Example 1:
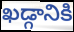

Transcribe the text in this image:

ఖడ్గానికి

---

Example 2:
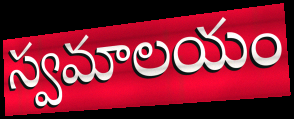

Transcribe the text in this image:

స్వమాలయం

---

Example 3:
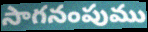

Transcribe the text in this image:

సాగనంపుము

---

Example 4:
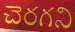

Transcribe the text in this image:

చెరగని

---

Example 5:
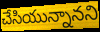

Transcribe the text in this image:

చేసియున్నానని